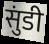
सुंडी